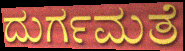
ದುರ್ಗಮತೆ